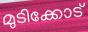
മുടിക്കോട്